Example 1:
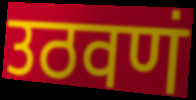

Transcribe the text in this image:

उठवणं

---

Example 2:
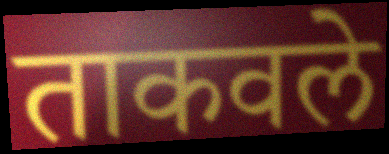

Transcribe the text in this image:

ताकवले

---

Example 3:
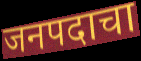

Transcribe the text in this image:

जनपदाचा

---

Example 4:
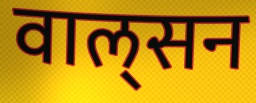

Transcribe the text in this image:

वाल्सन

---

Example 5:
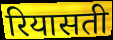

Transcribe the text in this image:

रियासती